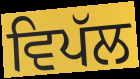
ਵਿਪੱਲ